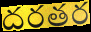
దరతర